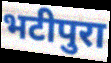
भटीपुरा